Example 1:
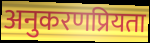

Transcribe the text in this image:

अनुकरणप्रियता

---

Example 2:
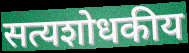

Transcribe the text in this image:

सत्यशोधकीय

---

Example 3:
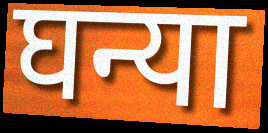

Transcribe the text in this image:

घन्या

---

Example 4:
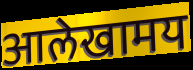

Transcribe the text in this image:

आलेखामय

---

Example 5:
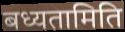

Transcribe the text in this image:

बध्यतामिति